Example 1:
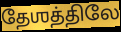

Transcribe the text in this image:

தேஶத்திலே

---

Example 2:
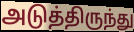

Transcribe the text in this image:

அடுத்திருந்து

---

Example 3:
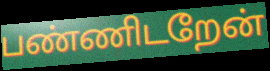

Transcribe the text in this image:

பண்ணிடறேன்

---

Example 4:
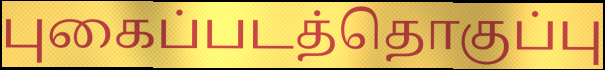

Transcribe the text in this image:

புகைப்படத்தொகுப்பு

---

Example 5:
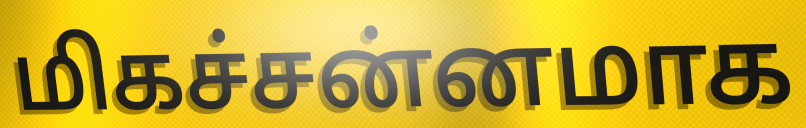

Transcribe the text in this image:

மிகச்சன்னமாக